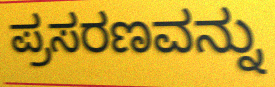
ಪ್ರಸರಣವನ್ನು